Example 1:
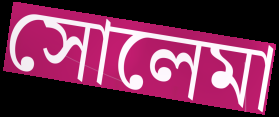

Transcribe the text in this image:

সোলেমা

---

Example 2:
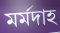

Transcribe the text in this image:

মর্মদাহ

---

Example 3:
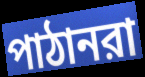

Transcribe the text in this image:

পাঠানরা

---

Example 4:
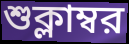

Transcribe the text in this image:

শুক্লাম্বর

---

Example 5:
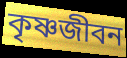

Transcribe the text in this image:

কৃষ্ণজীবন